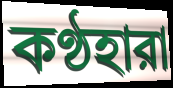
কণ্ঠহারা